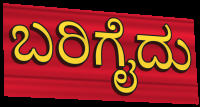
ಬರಿಗೈದು